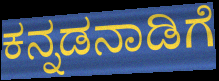
ಕನ್ನಡನಾಡಿಗೆ